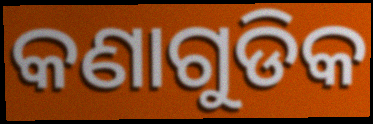
କଣାଗୁଡିକ